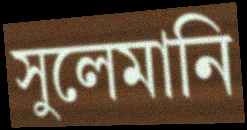
সুলেমানি